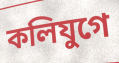
কলিযুগে